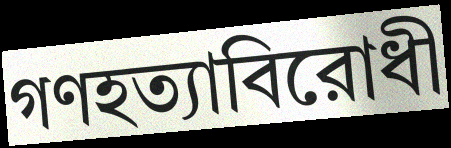
গণহত্যাবিরোধী